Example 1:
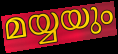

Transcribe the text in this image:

മയ്യയും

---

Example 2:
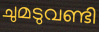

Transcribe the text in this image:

ചുമടുവണ്ടി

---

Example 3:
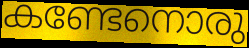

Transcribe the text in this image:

കണ്ടേനൊരു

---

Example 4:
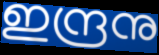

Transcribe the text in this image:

ഇന്ദ്രനു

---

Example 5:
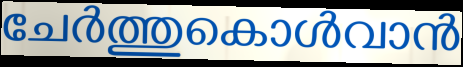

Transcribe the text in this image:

ചേർത്തുകൊൾവാൻ